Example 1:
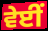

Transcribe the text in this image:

ਵੇਈਂ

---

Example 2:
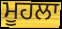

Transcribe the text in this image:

ਮੂਹਲਾ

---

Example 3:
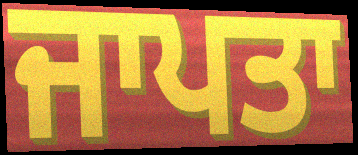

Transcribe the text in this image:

ਜਾਪਤਾ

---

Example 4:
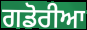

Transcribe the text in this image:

ਗਡੋਰੀਆ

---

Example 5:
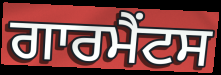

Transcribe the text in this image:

ਗਾਰਮੈਂਟਸ